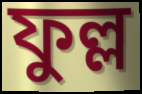
ফুল্ল